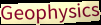
Geophysics